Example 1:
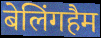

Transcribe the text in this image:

बेलिंगहैम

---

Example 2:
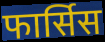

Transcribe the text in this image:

फार्सिस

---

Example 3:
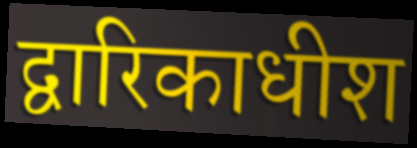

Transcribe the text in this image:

द्वारिकाधीश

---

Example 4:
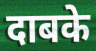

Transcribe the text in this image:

दाबके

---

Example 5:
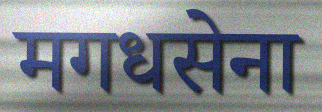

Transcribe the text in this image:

मगधसेना